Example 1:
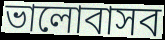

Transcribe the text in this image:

ভালোবাসব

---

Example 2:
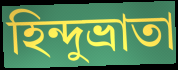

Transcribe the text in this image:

হিন্দুভ্রাতা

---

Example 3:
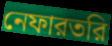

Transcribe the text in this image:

নেফারতরি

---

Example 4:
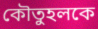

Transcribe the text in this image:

কৌতুহলকে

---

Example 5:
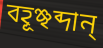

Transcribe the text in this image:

বহূঞ্ছব্দান্